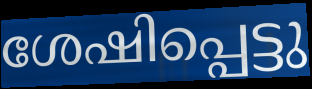
ശേഷിപ്പെട്ടു